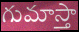
గుమాస్తా